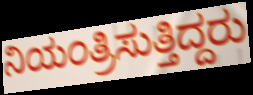
ನಿಯಂತ್ರಿಸುತ್ತಿದ್ದರು